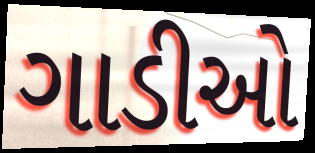
ગાડીઓ